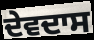
ਦੇਵਦਾਸ